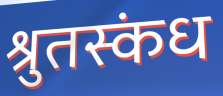
श्रुतस्कंध